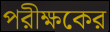
পরীক্ষকের